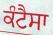
ਕੰਟੈਸਾ